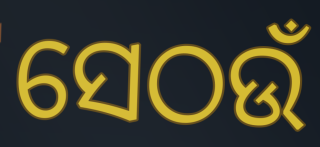
ସେଠଉଁ